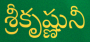
శ్రీకృష్ణునీ